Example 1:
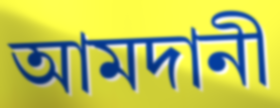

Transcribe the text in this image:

আমদানী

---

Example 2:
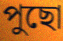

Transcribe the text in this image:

পুছো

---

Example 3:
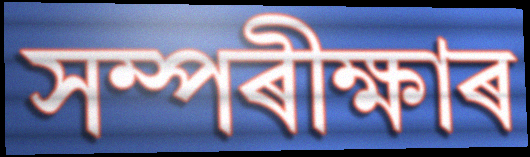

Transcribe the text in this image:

সম্পৰীক্ষাৰ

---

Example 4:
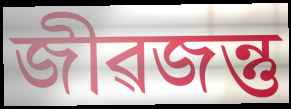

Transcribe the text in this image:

জীৱজন্তু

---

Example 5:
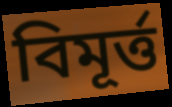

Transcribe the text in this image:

বিমূৰ্ত্ত